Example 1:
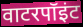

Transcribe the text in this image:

वाटरपॉइंट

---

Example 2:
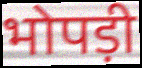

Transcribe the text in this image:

भोपड़ी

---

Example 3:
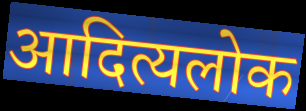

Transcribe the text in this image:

आदित्यलोक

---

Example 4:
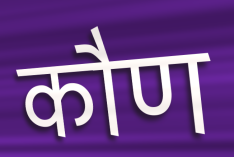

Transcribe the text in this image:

कौण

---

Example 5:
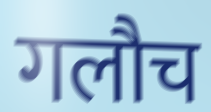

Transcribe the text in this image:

गलौच